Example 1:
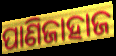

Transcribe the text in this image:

ପାଣିଜାହାଜ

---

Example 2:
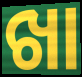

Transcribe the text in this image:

ଖା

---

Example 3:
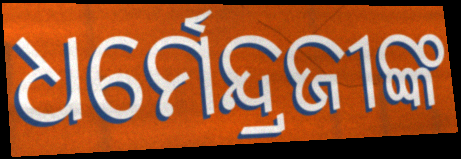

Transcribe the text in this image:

ଧର୍ମେନ୍ଦ୍ରଜୀଙ୍କ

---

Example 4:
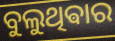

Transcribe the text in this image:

ବୁଲୁଥିଵାର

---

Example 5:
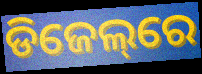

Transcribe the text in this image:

ଡିଜେଲ୍‌ରେ